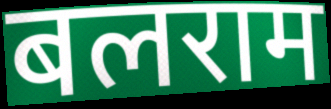
बलराम